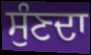
ਸੁੰਣਦਾ